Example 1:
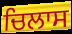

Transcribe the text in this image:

ਚਿਲਾਸ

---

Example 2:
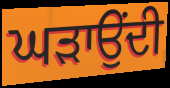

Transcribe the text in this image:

ਘੜਾਉਂਦੀ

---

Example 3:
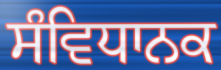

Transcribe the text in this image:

ਸੰਵਿਧਾਨਕ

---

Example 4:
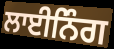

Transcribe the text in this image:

ਲਾਈਨਿੰਗ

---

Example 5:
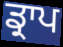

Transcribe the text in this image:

ਡ੍ਰਾਪ